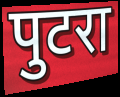
पुटरा